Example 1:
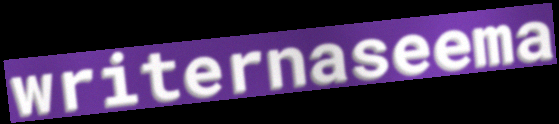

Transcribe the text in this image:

writernaseema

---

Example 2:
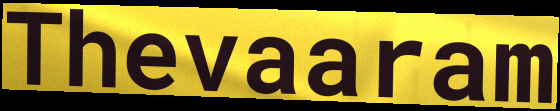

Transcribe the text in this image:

Thevaaram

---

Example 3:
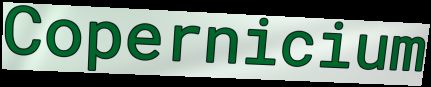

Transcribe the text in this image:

Copernicium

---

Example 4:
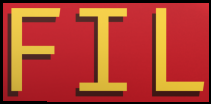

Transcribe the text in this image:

FIL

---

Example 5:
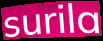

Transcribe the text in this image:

surila